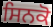
ਸਿਨਕੋ